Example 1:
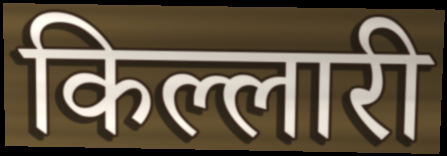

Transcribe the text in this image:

किल्लारी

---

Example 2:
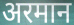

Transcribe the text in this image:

अरमान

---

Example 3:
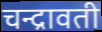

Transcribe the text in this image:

चन्द्रावती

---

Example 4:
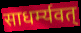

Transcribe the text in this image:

साधर्म्यवत्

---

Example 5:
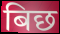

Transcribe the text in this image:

बिछ